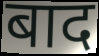
बाद